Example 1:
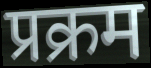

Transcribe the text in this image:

प्रक्रम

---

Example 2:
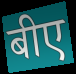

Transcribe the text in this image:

बीए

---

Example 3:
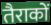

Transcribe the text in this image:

तैराकों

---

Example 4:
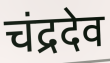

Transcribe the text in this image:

चंद्रदेव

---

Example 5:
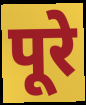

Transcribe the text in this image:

पूरे